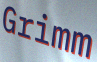
Grimm